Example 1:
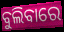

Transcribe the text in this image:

ବୁଲିବାରେ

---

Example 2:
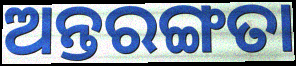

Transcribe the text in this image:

ଅନ୍ତରଙ୍ଗତା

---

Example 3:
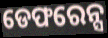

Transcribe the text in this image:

ଡେଫରେନ୍ସ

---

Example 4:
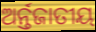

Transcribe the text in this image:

ଅର୍ନ୍ତଜାତୀୟ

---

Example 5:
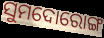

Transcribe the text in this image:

ସୁମଦୋରୋଙ୍ଗ